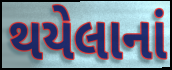
થયેલાનાં